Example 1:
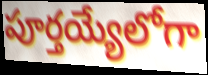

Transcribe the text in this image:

పూర్తయ్యేలోగా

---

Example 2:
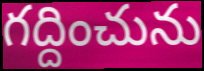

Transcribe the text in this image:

గద్దించును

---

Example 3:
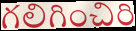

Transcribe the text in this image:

గలిగించిరి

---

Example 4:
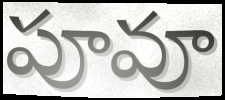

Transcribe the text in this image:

పూవూ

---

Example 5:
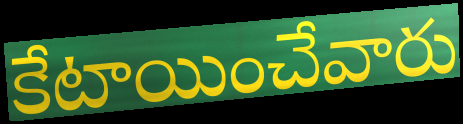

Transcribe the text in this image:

కేటాయించేవారు